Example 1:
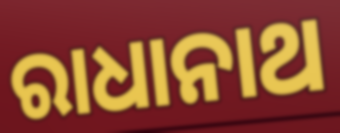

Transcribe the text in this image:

ରାଧାନାଥ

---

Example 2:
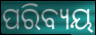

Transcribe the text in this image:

ପରିବ୍ୟୟ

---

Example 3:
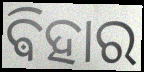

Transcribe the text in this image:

ଵିହାର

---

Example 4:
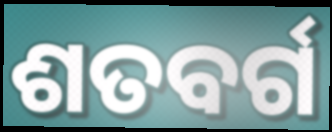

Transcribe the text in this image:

ଶତବର୍ଗ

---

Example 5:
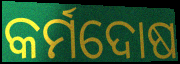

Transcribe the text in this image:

କର୍ମଦୋଷ